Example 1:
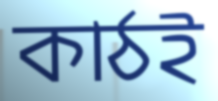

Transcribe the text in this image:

কাঠই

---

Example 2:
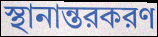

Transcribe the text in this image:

স্থানান্তরকরণ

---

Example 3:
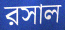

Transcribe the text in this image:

রসাল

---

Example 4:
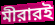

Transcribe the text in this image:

মীরারই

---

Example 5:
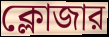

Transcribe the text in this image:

ক্লোজার